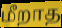
மீறாத